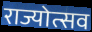
राज्योत्सव